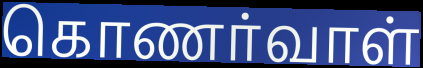
கொணர்வாள்